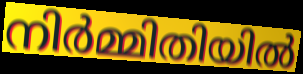
നിർമ്മിതിയിൽ